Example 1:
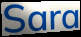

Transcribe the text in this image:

Sara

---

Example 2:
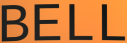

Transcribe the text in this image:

BELL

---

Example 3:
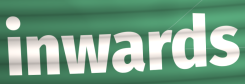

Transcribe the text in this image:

inwards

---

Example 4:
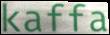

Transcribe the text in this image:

kaffa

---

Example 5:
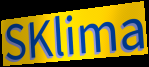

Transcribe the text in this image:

SKlima